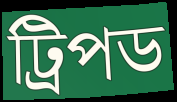
ট্রিপড